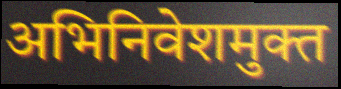
अभिनिवेशमुक्त